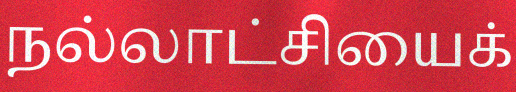
நல்லாட்சியைக்